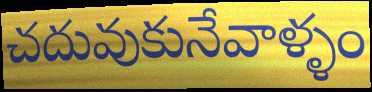
చదువుకునేవాళ్ళం